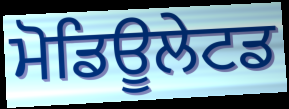
ਮੋਡਿਊਲੇਟਡ